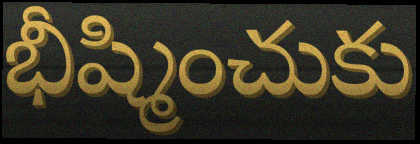
భీష్మించుకు